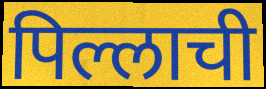
पिल्लाची